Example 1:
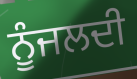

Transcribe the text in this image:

ਨੂੰਜਲਦੀ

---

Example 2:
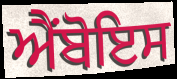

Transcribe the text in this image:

ਐਂਬੋਇਸ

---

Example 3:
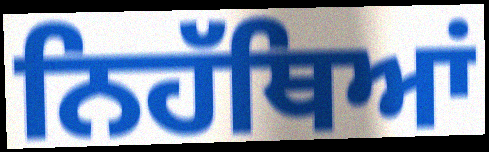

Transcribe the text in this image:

ਨਿਹੱਥਿਆਂ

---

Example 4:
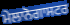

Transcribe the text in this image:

ਮੇਲਾਨੋਗਾਸਟਰ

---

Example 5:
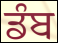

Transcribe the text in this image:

ਡੰਬ